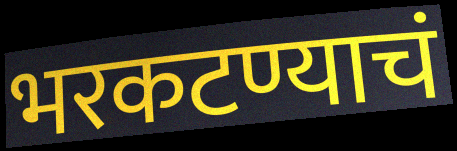
भरकटण्याचं